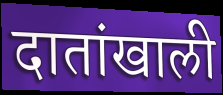
दातांखाली